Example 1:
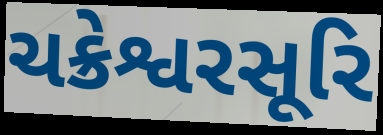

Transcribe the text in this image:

ચક્રેશ્વરસૂરિ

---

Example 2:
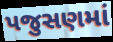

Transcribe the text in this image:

પજુસણમાં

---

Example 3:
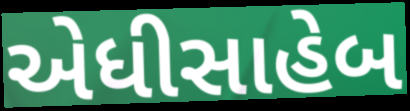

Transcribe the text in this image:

એધીસાહેબ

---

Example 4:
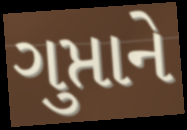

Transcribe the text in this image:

ગુપ્તાને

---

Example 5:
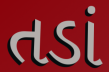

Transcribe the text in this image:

તડાં